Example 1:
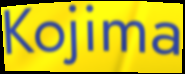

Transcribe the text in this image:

Kojima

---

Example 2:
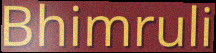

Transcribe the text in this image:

Bhimruli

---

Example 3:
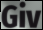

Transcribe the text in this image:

Giv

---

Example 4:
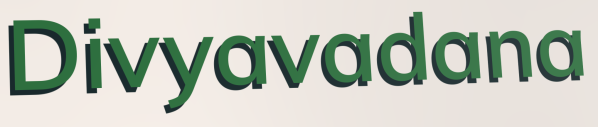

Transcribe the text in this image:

Divyavadana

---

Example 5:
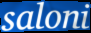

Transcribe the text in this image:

saloni